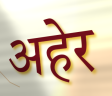
अहेर